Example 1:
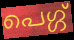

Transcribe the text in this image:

പെഗ്ഗ്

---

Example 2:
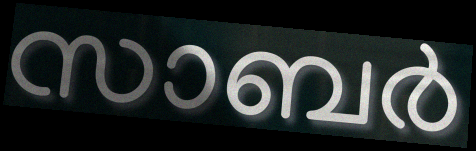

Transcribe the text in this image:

സാബർ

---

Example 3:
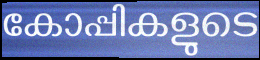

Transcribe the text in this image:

കോപ്പികളുടെ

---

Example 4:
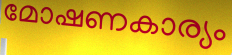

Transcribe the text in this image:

മോഷണകാര്യം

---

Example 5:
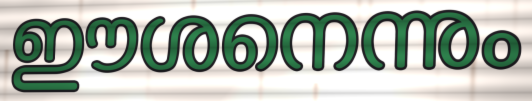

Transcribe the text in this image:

ഈശനെന്നും